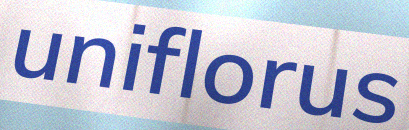
uniflorus